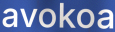
avokoa